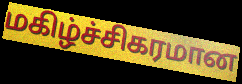
மகிழ்ச்சிகரமான